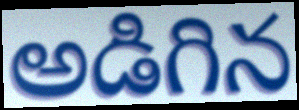
అడిగిన